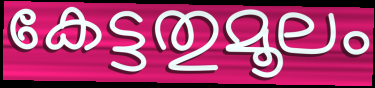
കേട്ടതുമൂലം